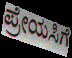
ಪ್ರೇಯಸಿಗೆ